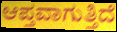
ಆಪ್ತವಾಗುತ್ತಿದೆ